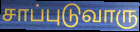
சாப்புடுவாரு